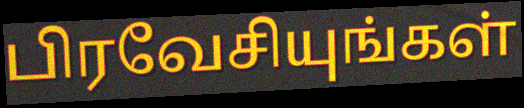
பிரவேசியுங்கள்